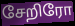
சேறிரோ